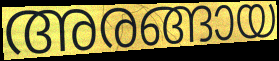
അരങ്ങായ